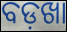
ବଡ଼ଖା